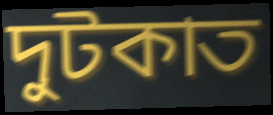
দুটকাত